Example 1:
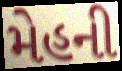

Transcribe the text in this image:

મેહની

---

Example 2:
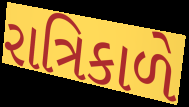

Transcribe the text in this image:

રાત્રિકાળે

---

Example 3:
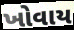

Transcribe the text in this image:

ખોવાય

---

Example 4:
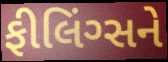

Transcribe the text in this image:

ફીલિંગ્સને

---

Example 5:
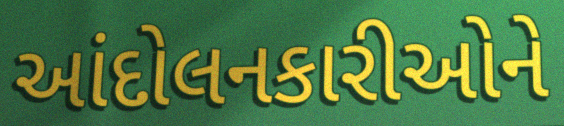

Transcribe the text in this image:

આંદોલનકારીઓને